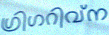
ഗ്രിഗറിവ്ന